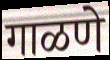
गाळणे